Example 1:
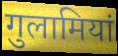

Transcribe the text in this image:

गुलामियां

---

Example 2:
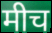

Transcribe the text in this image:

मीच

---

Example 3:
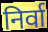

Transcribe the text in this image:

निर्वा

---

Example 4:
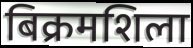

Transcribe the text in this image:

बिक्रमशिला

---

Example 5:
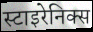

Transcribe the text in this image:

स्टाइरेनिक्स